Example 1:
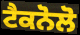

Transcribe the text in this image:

ਟੈਕਨੋਲੋ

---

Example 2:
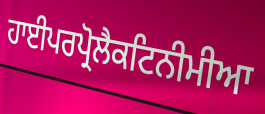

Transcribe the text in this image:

ਹਾਈਪਰਪ੍ਰੋਲੈਕਟਿਨੀਮੀਆ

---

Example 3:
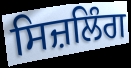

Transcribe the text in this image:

ਸਿਜ਼ਲਿੰਗ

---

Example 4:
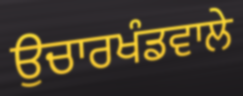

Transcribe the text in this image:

ਉਚਾਰਖੰਡਵਾਲੇ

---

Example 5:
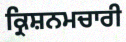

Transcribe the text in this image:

ਕ੍ਰਿਸ਼ਨਮਚਾਰੀ